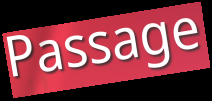
Passage